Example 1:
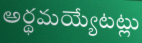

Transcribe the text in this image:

అర్థమయ్యేటట్లు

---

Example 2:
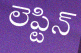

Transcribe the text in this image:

లెప్టిన్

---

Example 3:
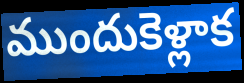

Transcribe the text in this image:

ముందుకెళ్లాక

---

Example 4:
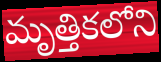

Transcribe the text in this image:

మృత్తికలోని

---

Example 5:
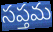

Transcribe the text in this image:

సప్తమ